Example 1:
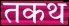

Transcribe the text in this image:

तकथ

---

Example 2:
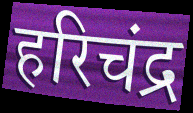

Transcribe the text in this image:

हरिचंद्र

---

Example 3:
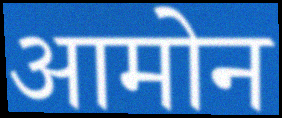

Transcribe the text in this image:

आमोन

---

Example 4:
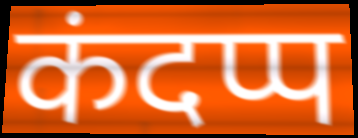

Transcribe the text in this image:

कंदप्प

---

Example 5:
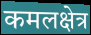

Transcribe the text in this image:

कमलक्षेत्र